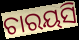
ଚାରୟସି